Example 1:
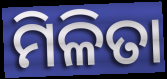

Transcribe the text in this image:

ମିଳିତା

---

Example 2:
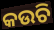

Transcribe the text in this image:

କଉଚି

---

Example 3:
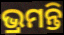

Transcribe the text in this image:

ଭ୍ରମନ୍ତି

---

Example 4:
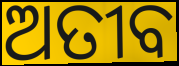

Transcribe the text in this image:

ଅତୀବ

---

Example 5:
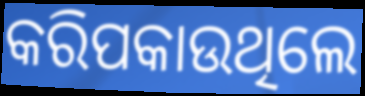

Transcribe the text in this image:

କରିପକାଉଥିଲେ